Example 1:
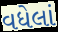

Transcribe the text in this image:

વધેલાં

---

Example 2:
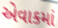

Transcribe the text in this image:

એવાકમાં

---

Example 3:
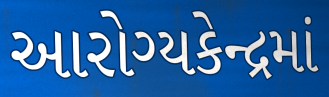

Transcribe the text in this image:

આરોગ્યકેન્દ્રમાં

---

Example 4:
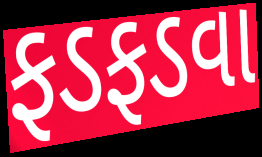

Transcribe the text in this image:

ફડફડવા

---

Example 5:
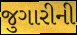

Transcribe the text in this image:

જુગારીની